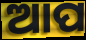
ଆପ